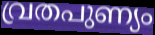
വ്രതപുണ്യം